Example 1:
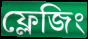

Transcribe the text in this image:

ফ্লেজিং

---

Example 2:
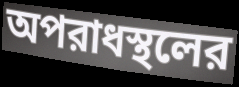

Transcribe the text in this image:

অপরাধস্থলের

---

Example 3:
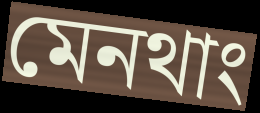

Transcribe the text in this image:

মেনথাং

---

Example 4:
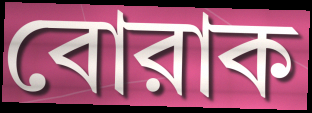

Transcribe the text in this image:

বোরাক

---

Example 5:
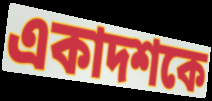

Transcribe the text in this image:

একাদশকে